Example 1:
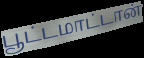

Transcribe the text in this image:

பூட்டமாட்டான்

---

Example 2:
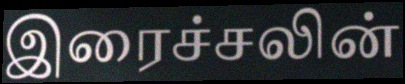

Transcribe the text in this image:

இரைச்சலின்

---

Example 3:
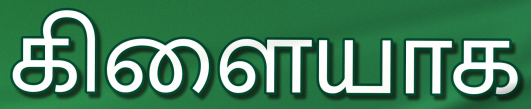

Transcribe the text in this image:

கிளையாக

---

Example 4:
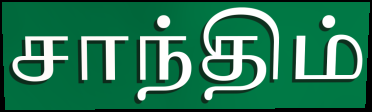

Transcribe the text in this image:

சாந்திம்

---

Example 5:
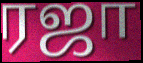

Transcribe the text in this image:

ரஜா